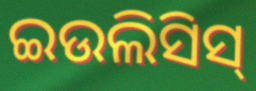
ଇଉଲିସିସ୍